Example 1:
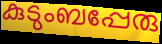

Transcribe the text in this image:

കുടുംബപ്പേരു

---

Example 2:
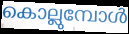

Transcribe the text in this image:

കൊല്ലുമ്പോൾ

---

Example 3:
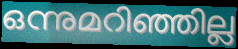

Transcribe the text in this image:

ഒന്നുമറിഞ്ഞില്ല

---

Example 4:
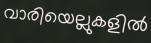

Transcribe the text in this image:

വാരിയെല്ലുകളിൽ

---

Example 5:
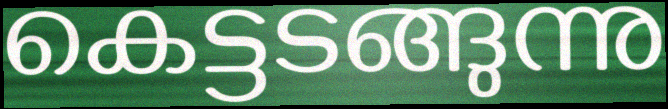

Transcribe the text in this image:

കെട്ടടങ്ങുന്നു